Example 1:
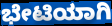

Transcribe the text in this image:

ಭೇಟಿಯಾಗಿ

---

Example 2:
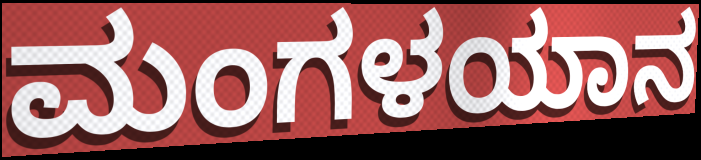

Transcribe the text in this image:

ಮಂಗಳಯಾನ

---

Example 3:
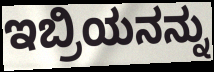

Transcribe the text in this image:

ಇಬ್ರಿಯನನ್ನು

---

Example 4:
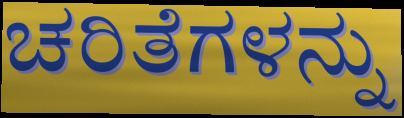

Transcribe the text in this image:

ಚರಿತೆಗಳನ್ನು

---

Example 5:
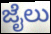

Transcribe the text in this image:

ಜೈಲು